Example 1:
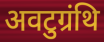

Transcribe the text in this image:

अवटुग्रंथि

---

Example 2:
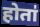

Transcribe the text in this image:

होता॑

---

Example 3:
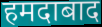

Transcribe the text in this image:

हमदाबाद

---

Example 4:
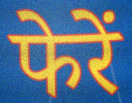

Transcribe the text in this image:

फेरें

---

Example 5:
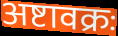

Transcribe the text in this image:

अष्टावक्रः